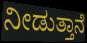
ನೀಡುತ್ತಾನೆ